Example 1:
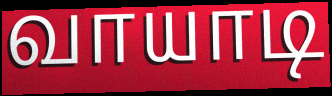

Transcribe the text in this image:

வாயாடி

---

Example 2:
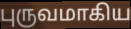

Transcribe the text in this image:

புருவமாகிய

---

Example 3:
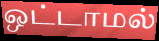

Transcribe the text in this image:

ஒட்டாமல்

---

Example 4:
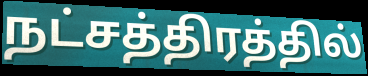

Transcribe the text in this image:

நட்சத்திரத்தில்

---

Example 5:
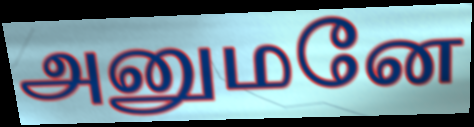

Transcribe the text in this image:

அனுமனே